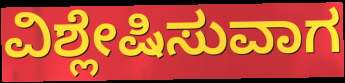
ವಿಶ್ಲೇಷಿಸುವಾಗ